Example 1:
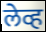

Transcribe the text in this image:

लेव्ह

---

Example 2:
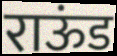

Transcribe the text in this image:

राऊंड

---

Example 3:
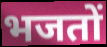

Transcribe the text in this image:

भजतों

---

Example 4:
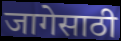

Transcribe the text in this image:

जागेसाठी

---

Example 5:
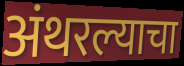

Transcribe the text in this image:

अंथरल्याचा